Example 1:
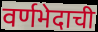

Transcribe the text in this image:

वर्णभेदाची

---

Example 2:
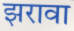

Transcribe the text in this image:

झरावा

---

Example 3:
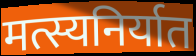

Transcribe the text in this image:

मत्स्यनिर्यात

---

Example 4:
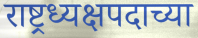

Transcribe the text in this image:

राष्ट्रध्यक्षपदाच्या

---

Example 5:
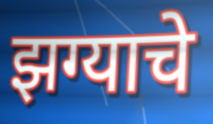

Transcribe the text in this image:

झग्याचे